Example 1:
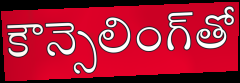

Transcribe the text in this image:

కౌన్సెలింగ్‌తో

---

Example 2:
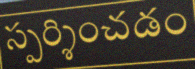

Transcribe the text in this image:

స్పర్శించడం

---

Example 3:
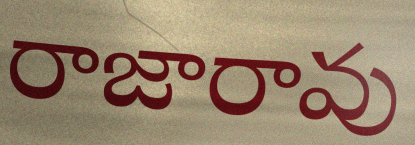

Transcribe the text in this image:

రాజారావు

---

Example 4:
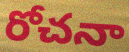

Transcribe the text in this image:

రోచనా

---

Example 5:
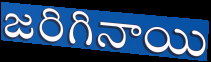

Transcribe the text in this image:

జరిగినాయి